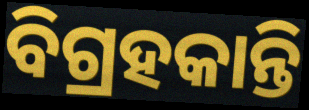
ବିଗ୍ରହକାନ୍ତି